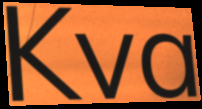
Kva